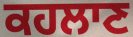
ਕਹਲਾਣ